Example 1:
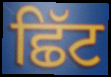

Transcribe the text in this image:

ਛਿੱਟ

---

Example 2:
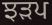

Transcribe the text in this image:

ਝੜਪ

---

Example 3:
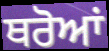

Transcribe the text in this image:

ਥਰੋਆਂ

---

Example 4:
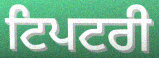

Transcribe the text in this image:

ਟਿਪਟਰੀ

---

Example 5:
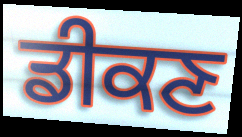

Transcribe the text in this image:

ਡੀਕਣ